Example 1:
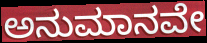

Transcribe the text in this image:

ಅನುಮಾನವೇ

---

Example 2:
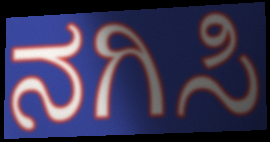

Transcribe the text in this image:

ನಗಿಸಿ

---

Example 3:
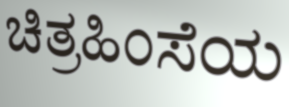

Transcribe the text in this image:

ಚಿತ್ರಹಿಂಸೆಯ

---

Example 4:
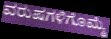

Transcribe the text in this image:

ವರುಷಗಳಿಗೊಮ್ಮೆ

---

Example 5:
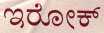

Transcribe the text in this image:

ಇರೋಕ್